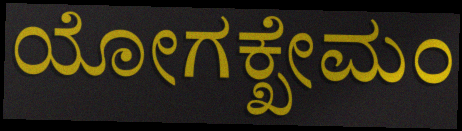
ಯೋಗಕ್ಖೇಮಂ